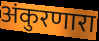
अंकुरणारा